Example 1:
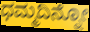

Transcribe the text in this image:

ಧಮ್ಮದಿನ್ನೋ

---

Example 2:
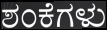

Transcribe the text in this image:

ಶಂಕೆಗಳು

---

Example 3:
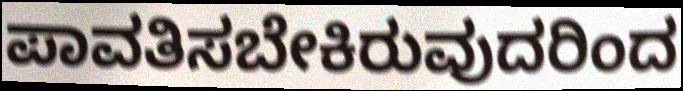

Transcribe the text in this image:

ಪಾವತಿಸಬೇಕಿರುವುದರಿಂದ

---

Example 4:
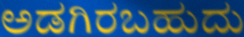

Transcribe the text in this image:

ಅಡಗಿರಬಹುದು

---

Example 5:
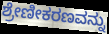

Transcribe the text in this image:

ಶ್ರೇಣೀಕರಣವನ್ನು